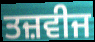
ਤਜ਼ਵੀਜ